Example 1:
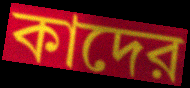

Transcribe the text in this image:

কাদের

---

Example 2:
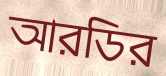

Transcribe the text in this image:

আরডির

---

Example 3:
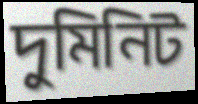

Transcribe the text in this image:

দুমিনিট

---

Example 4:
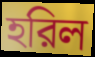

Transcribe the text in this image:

হরিল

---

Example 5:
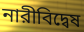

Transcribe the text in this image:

নারীবিদ্বেষ